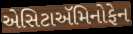
એસિટાઍમિનોફેન